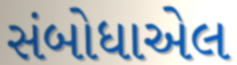
સંબોધાએલ